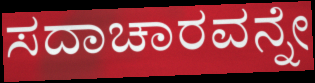
ಸದಾಚಾರವನ್ನೇ